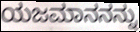
ಯಜಮಾನನನ್ನು